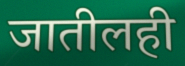
जातीलही